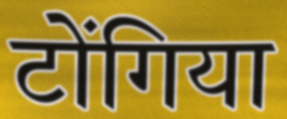
टोंगिया